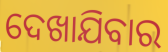
ଦେଖାଯିବାର